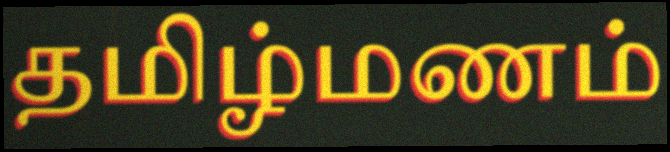
தமிழ்மணம்